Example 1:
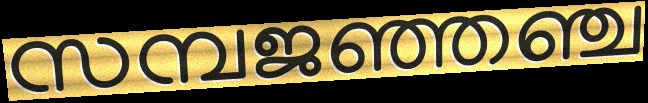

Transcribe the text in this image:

സമ്പജഞ്ഞഞ്ച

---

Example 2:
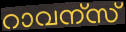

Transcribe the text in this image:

റാവന്സ്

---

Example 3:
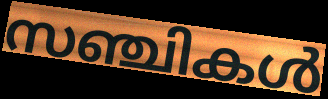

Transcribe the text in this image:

സഞ്ചികൾ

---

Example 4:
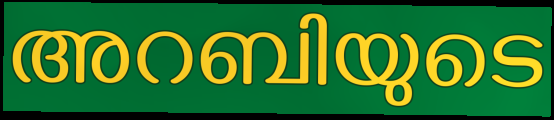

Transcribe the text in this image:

അറബിയുടെ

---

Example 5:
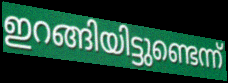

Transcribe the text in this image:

ഇറങ്ങിയിട്ടുണ്ടെന്ന്